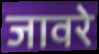
जावरे